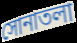
সোনাতলা